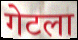
गेटला